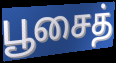
பூசைத்